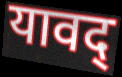
यावद्